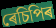
ৰেচিপিৰ